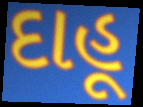
દાહૂ